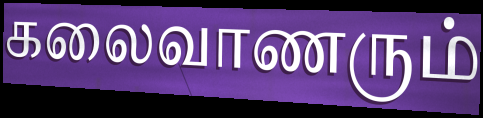
கலைவாணரும்